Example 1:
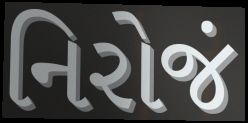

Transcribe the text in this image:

નિરોજં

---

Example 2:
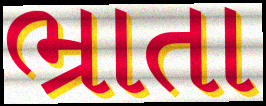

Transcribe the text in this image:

ભ્રાતા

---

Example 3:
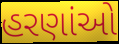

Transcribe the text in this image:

હરણાંઓ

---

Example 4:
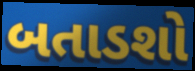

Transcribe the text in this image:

બતાડશો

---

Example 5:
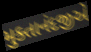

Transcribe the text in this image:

મુક્તાનંદજીએ